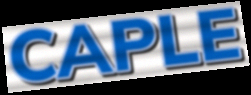
CAPLE